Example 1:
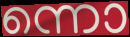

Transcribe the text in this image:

ന്നൊ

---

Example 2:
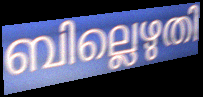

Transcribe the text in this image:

ബില്ലെഴുതി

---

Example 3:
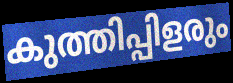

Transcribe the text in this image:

കുത്തിപ്പിളരും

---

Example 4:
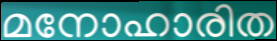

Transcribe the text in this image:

മനോഹാരിത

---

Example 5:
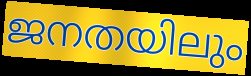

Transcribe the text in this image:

ജനതയിലും